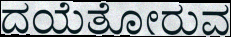
ದಯೆತೋರುವ